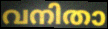
വനിതാ